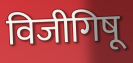
विजीगिषू